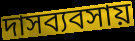
দাসব্যবসায়